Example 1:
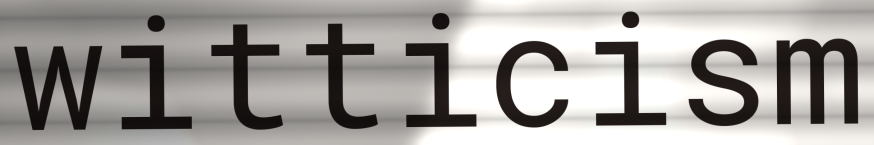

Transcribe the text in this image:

witticism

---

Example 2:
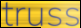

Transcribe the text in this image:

truss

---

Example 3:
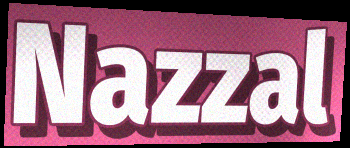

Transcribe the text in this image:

Nazzal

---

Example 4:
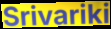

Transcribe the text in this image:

Srivariki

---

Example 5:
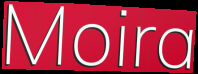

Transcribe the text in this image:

Moira